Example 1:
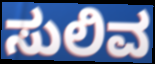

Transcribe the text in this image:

ಸುಲಿವ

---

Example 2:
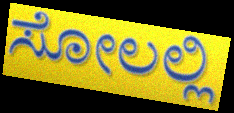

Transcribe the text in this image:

ಸೋಲಲ್ಲಿ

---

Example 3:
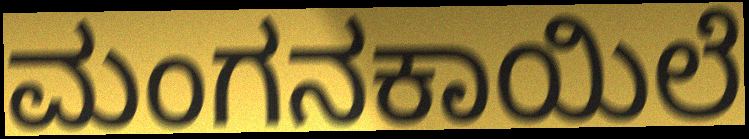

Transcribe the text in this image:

ಮಂಗನಕಾಯಿಲೆ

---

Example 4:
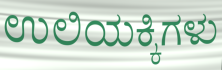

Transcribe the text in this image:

ಉಲಿಯಕ್ಕಿಗಳು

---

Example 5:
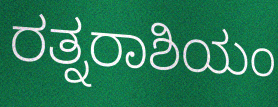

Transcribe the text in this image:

ರತ್ನರಾಶಿಯಂ